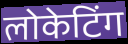
लोकेटिंग